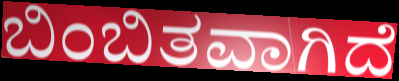
ಬಿಂಬಿತವಾಗಿದೆ